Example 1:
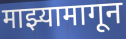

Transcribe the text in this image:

माझ्यामागून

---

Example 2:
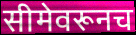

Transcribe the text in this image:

सीमेवरूनच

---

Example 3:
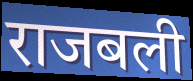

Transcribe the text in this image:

राजबली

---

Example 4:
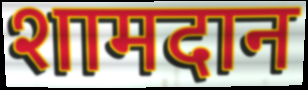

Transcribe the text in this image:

शामदान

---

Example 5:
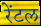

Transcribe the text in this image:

रेंटल